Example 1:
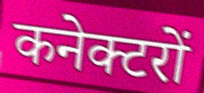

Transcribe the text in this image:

कनेक्टरों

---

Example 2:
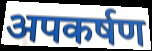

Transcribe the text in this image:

अपकर्षण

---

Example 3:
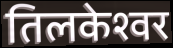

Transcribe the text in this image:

तिलकेश्वर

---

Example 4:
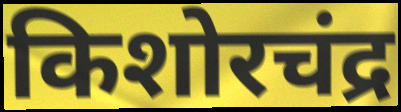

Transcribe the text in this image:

किशोरचंद्र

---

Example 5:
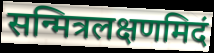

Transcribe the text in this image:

सन्मित्रलक्षणमिदं